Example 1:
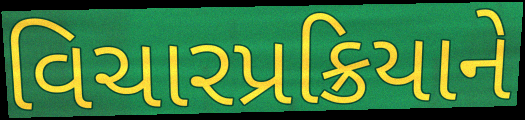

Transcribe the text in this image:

વિચારપ્રક્રિયાને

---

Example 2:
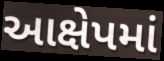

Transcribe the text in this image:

આક્ષેપમાં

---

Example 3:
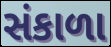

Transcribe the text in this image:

સંકાળા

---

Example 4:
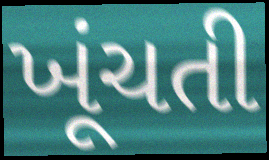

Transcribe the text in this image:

ખૂંચતી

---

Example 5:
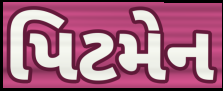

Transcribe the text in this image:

પિટમેન